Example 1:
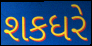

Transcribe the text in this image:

શકધરે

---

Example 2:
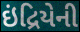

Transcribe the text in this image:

ઇંદ્રિયેની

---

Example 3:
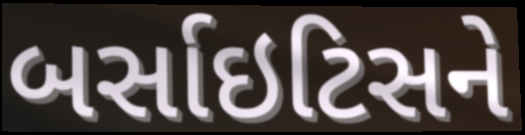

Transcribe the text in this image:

બર્સાઇટિસને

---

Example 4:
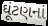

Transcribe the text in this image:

ઘૂંટણનાં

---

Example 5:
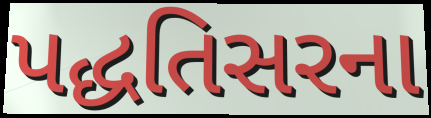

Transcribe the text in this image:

પદ્ધતિસરના